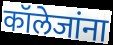
कॉलेजांना